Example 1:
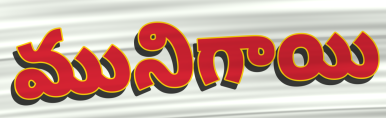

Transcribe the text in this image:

మునిగాయి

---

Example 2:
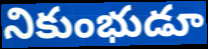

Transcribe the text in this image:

నికుంభుడూ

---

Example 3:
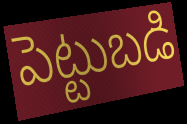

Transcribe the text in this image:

పెట్టుబడి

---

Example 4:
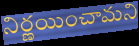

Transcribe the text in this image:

నిర్ణయించామని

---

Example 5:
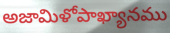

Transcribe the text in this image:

అజామిళోపాఖ్యానము